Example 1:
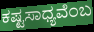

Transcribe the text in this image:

ಕಷ್ಟಸಾಧ್ಯವೆಂಬ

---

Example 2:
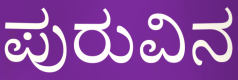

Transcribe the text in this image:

ಪುರುವಿನ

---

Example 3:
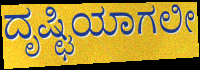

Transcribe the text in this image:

ದೃಷ್ಟಿಯಾಗಲೀ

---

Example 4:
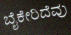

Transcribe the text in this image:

ಬೈಕೇರಿದೆವು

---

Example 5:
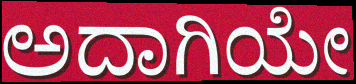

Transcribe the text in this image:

ಅದಾಗಿಯೇ